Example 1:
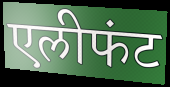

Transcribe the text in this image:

एलीफंट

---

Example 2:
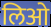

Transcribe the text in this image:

लिओ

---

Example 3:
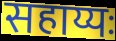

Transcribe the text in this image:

सहाय्यः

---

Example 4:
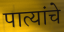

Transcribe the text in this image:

पात्यांचे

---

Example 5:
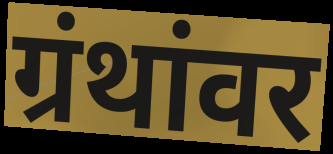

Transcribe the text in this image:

ग्रंथांवर